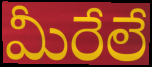
మీరేలే